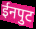
ईनपुट